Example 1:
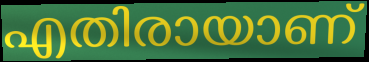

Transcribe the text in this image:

എതിരായാണ്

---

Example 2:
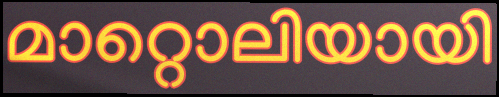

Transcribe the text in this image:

മാറ്റൊലിയായി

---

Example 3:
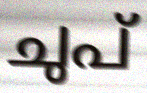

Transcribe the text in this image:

ചുപ്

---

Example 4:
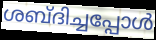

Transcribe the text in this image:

ശബ്ദിച്ചപ്പോൾ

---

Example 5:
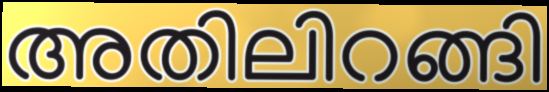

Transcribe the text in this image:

അതിലിറങ്ങി